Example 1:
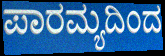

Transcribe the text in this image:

ಪಾರಮ್ಯದಿಂದ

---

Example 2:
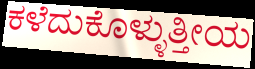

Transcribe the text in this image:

ಕಳೆದುಕೊಳ್ಳುತ್ತೀಯ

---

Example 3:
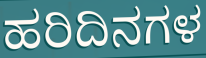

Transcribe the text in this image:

ಹರಿದಿನಗಳ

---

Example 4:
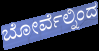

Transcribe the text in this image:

ಬೋರ್ವೆಲ್ನಿಂದ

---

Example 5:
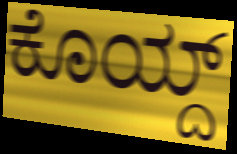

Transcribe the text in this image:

ಕೊಯ್ದ್